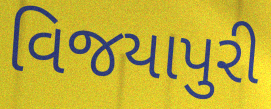
વિજયાપુરી